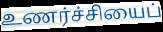
உணர்ச்சியைப்